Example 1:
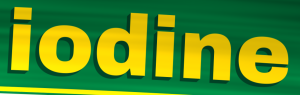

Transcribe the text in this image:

iodine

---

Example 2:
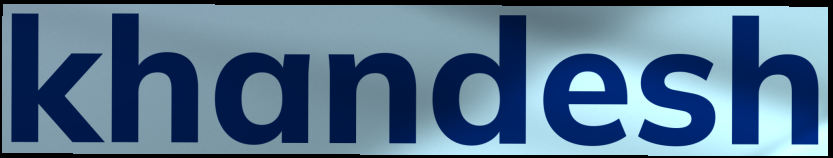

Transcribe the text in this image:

khandesh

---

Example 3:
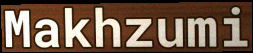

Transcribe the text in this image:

Makhzumi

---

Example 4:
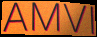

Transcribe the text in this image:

AMVI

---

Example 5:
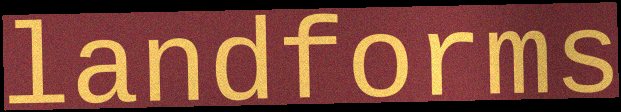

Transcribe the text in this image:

landforms